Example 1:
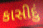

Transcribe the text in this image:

કાસીદું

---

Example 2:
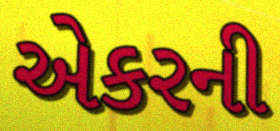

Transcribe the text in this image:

એકરની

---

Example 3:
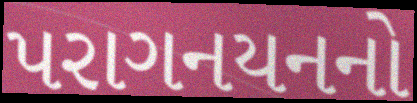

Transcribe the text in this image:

પરાગનયનનો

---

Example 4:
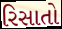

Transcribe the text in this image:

રિસાતો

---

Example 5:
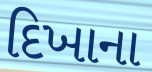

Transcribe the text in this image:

દિખાના